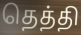
தெத்தி